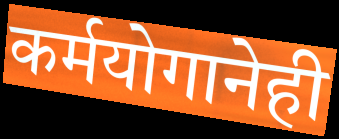
कर्मयोगानेही